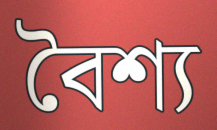
বৈশ্য